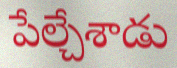
పేల్చేశాడు